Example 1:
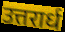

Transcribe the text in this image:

उत्तरार्ध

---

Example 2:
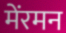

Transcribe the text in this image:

मेंरमन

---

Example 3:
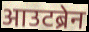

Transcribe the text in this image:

आउटब्रेन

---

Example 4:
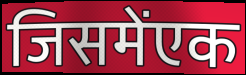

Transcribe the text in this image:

जिसमेंएक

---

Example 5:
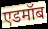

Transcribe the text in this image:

एडमॉब